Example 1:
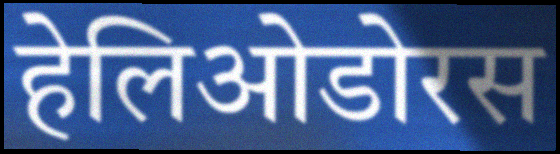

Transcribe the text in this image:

हेलिओडोरस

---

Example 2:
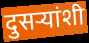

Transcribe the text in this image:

दुसर्‍यांशी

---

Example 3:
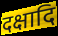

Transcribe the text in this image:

दक्षादि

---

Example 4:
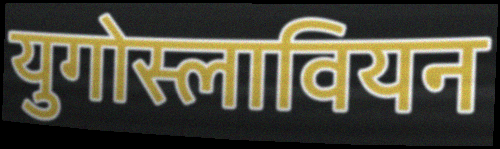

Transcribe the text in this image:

युगोस्लावियन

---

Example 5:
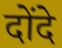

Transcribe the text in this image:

दोंदे